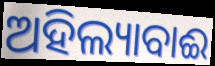
ଅହିଲ୍ୟାବାଈ